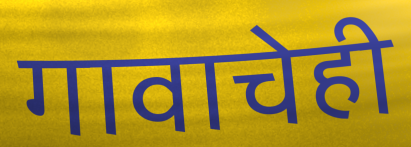
गावाचेही